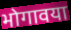
भोगावया